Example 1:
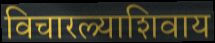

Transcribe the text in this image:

विचारल्याशिवाय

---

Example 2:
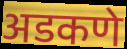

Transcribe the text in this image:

अडकणे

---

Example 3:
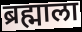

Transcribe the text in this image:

ब्रह्माला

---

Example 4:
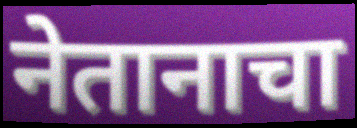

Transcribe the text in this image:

नेतानाचा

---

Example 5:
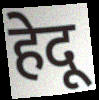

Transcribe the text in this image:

हेदू